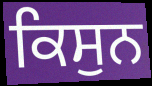
ਕਿਸੁਨ